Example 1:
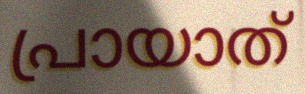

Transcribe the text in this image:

പ്രായാത്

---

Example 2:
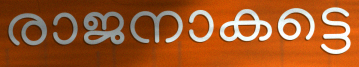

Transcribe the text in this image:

രാജനാകട്ടെ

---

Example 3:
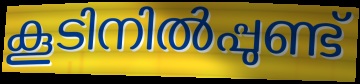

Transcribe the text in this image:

കൂടിനിൽപ്പുണ്ട്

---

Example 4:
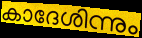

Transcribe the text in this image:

കാദേശിന്നും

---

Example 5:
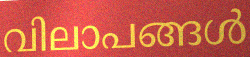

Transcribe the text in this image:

വിലാപങ്ങൾ